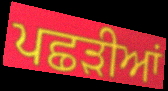
ਪਛੜੀਆਂ